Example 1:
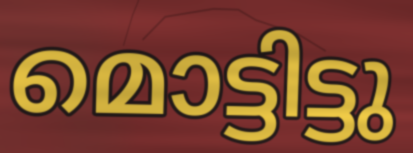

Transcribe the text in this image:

മൊട്ടിട്ടു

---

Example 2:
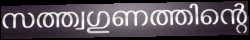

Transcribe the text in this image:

സത്ത്വഗുണത്തിന്റെ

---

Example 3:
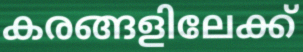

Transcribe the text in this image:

കരങ്ങളിലേക്ക്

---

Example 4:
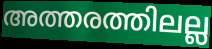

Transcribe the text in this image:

അത്തരത്തിലല്ല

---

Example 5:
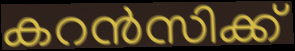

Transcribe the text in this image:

കറൻസിക്ക്